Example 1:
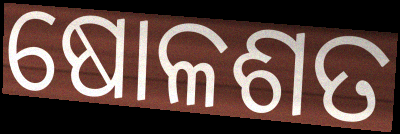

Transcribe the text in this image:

ଷୋଳଶତ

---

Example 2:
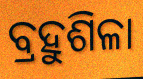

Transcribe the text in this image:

ବ୍ରହୁଶିଳା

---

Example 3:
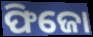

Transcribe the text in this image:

ଫିଜୋ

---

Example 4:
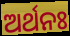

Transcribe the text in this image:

ଅର୍ଥନଃ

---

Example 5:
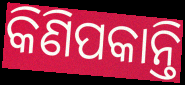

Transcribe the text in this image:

କିଣିପକାନ୍ତି